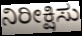
ನಿರೀಕ್ಷಿಸು